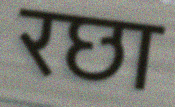
रछा